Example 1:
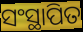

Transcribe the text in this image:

ସଂସ୍ଥାପିତ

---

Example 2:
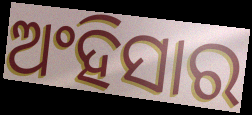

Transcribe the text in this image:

ଅଂହିସାର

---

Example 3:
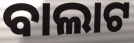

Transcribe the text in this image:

ବାଲାଟ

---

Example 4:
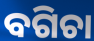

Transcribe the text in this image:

ବଗିଚା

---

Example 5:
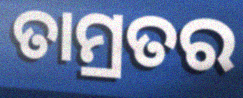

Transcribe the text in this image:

ତାମ୍ରତର